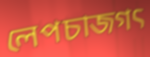
লেপচাজগৎ